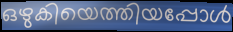
ഒഴുകിയെത്തിയപ്പോൾ